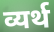
व्यर्थ